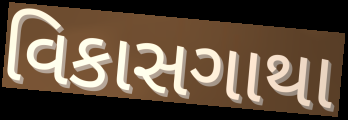
વિકાસગાથા